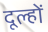
दूल्हों